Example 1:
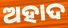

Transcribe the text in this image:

ଅହାଦ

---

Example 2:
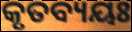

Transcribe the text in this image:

କୃତବ୍ୟୟଃ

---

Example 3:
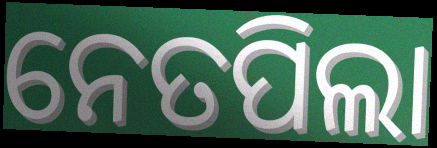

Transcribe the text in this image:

ନେତପିଲା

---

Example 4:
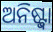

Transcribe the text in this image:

ଅନିଷ୍ଟ୍ୱା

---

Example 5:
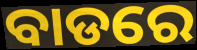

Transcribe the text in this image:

ବାଡରେ